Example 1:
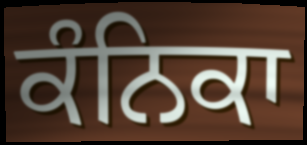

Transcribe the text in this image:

ਕੰਨਿਕਾ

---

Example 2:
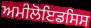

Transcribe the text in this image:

ਅਮੀਲੋਇਡਸਿਸ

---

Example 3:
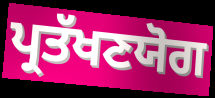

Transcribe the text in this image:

ਪ੍ਰਤੱਖਣਯੋਗ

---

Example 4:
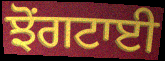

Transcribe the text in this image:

ਝੋਂਗਟਾਈ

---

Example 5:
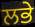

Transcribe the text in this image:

ਲਭੇ